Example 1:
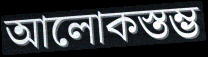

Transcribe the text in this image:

আলোকস্তম্ভ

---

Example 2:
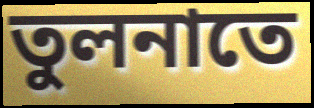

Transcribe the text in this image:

তুলনাতে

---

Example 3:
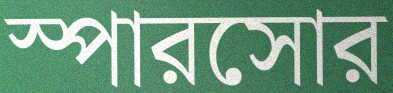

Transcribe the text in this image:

স্পারসোর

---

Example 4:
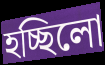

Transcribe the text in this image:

হচ্ছিলো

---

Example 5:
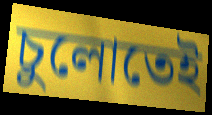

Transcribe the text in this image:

চুলোতেই